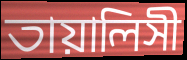
তায়ালিসী